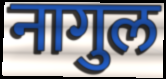
नागुल